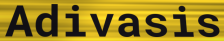
Adivasis